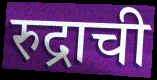
रुद्राची